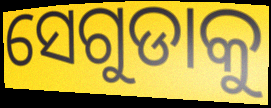
ସେଗୁଡାକୁ